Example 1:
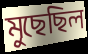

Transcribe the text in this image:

মুছেছিল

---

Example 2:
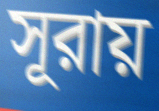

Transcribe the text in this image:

সূরায়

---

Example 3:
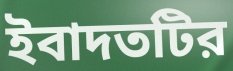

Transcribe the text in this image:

ইবাদতটির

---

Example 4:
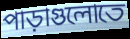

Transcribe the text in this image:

পাড়াগুলোতে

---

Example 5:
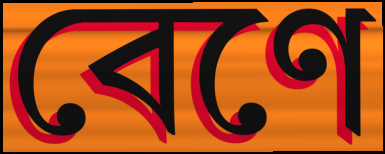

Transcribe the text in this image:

বেণে